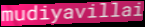
mudiyavillai